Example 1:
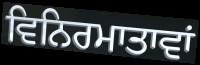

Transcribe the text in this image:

ਵਿਨਿਰਮਾਤਾਵਾਂ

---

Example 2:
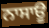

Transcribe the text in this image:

ਨਾਸਾਊ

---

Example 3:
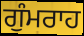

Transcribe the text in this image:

ਗੁੰਮਰਾਹ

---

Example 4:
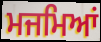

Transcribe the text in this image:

ਮਜਮਿਆਂ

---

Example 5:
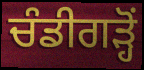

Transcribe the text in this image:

ਚੰਡੀਗੜ੍ਹੋਂ